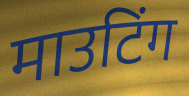
माउटिंग